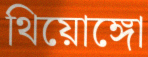
থিয়োঙ্গো